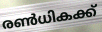
രൺധികക്ക്